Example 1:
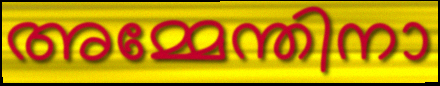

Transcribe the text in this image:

അമ്മേന്തിനാ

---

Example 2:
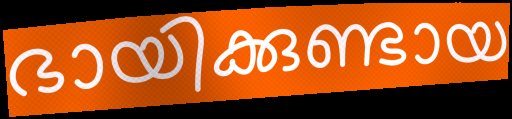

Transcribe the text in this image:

ഭായിക്കുണ്ടായ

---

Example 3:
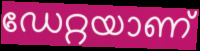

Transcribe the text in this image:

ഡേറ്റയാണ്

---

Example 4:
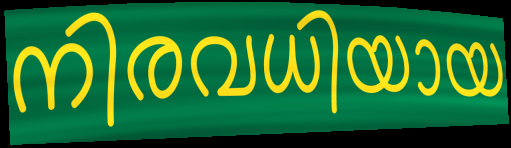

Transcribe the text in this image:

നിരവധിയായ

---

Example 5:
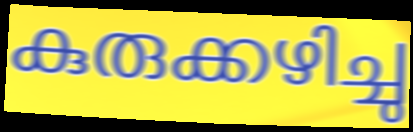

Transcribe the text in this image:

കുരുക്കഴിച്ചു